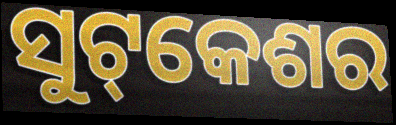
ସୁଟ୍‌କେଶର